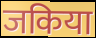
जकिया